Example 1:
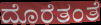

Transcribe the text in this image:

ದೊರೆತಂತೆ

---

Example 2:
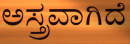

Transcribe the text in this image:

ಅಸ್ತ್ರವಾಗಿದೆ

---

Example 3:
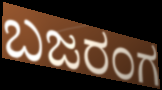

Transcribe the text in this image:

ಬಜರಂಗ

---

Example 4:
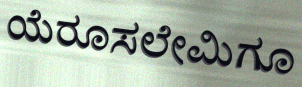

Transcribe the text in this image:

ಯೆರೂಸಲೇಮಿಗೂ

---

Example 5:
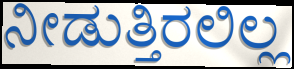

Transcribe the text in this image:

ನೀಡುತ್ತಿರಲಿಲ್ಲ